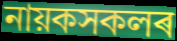
নায়কসকলৰ